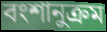
বংশানুক্রম